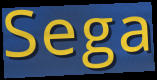
Sega